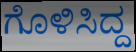
ಗೊಳಿಸಿದ್ದ